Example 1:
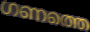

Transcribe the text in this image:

ഗണത്തെ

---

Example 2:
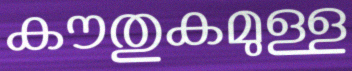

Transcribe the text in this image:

കൗതുകമുള്ള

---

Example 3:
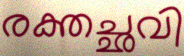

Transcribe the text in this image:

രക്തച്ഛവി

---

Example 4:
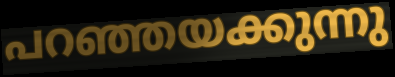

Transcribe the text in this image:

പറഞ്ഞയക്കുന്നു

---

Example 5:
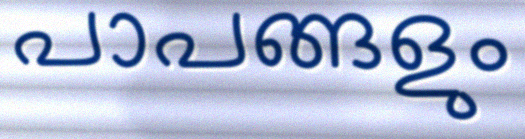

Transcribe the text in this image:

പാപങ്ങളും